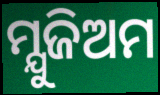
ମ୍ଯୁଜିଅମ